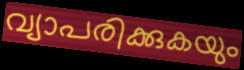
വ്യാപരിക്കുകയും